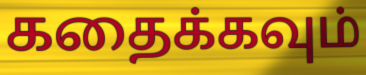
கதைக்கவும்